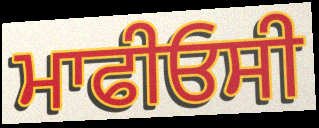
ਮਾਫੀਓਸੀ